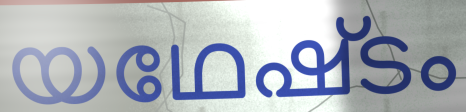
യഥേഷ്‌ടം